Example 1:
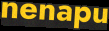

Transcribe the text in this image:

nenapu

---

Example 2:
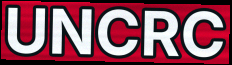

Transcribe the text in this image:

UNCRC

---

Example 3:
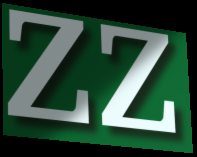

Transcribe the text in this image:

zz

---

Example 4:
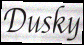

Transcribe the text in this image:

Dusky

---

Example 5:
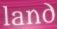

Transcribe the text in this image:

land